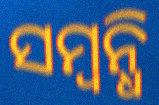
ସମ୍ବନ୍ଧି